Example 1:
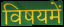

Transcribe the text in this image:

विषयमें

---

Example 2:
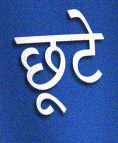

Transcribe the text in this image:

छूटे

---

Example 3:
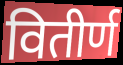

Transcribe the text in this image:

वितीर्ण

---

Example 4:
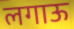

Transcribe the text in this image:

लगाऊ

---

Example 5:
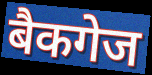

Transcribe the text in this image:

बैकगेज